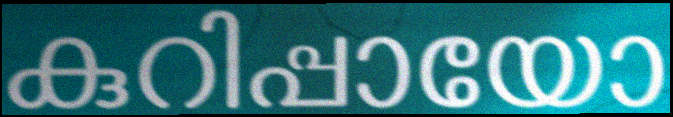
കുറിപ്പായോ